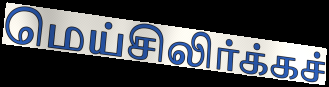
மெய்சிலிர்க்கச்